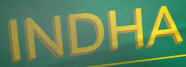
INDHA